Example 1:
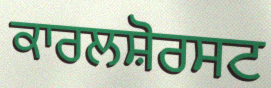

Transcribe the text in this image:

ਕਾਰਲਸ਼ੋਰਸਟ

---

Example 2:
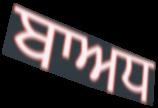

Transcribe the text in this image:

ਬਾਅਧ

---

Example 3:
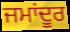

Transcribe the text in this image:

ਜਮਾਂਦੂਰ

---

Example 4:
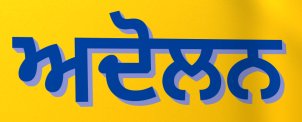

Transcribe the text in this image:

ਅਦੋਲਨ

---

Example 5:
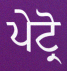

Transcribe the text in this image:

ਪੇਟ੍ਰੋ